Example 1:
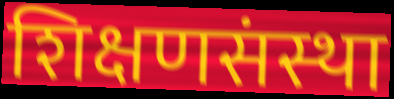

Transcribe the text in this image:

शिक्षणसंस्था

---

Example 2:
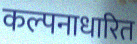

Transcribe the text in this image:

कल्पनाधारित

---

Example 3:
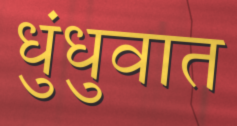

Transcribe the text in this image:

धुंधुवात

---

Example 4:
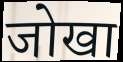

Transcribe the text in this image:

जोखा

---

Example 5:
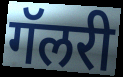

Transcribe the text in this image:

गॅलरी